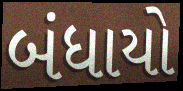
બંધાયો